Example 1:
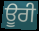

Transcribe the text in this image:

ਊਰੀ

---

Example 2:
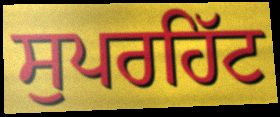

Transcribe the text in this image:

ਸੁਪਰਹਿੱਟ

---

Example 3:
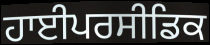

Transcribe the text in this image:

ਹਾਈਪਰਸੀਡਿਕ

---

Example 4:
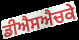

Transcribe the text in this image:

ਡੀਐਸਐਚਕੇ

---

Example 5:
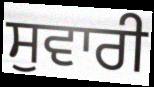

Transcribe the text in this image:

ਸੁਵਾਰੀ